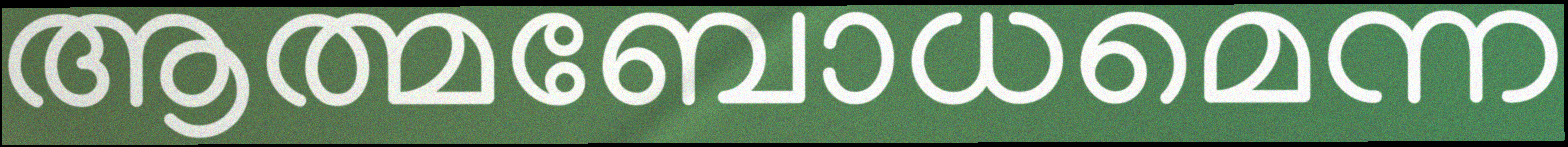
ആത്മബോധമെന്ന